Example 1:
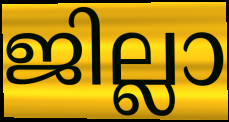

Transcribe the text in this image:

ജില്ലാ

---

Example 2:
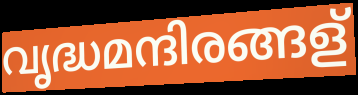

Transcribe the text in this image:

വൃദ്ധമന്ദിരങ്ങള്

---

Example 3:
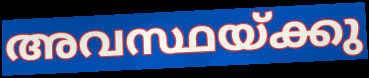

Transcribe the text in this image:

അവസ്ഥയ്ക്കു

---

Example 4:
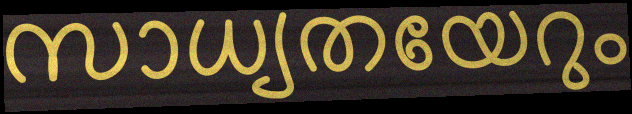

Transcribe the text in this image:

സാധ്യതയേറും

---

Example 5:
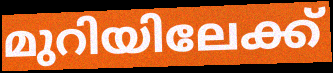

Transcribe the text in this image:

മുറിയിലേക്ക്